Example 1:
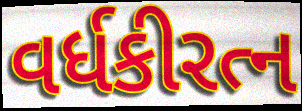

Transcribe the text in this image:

વર્ધકીરત્ન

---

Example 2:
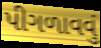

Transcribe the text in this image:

પીગળાવવું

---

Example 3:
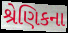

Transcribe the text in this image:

શ્રેણિકના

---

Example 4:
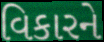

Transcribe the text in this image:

વિકારને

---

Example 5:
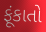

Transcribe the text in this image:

ફૂંકાતો